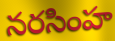
నరసింహ